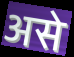
असे